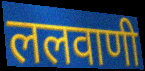
ललवाणी